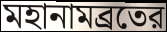
মহানামব্রতের